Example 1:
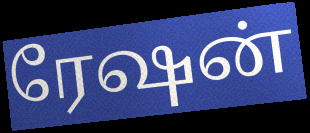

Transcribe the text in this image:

ரேஷன்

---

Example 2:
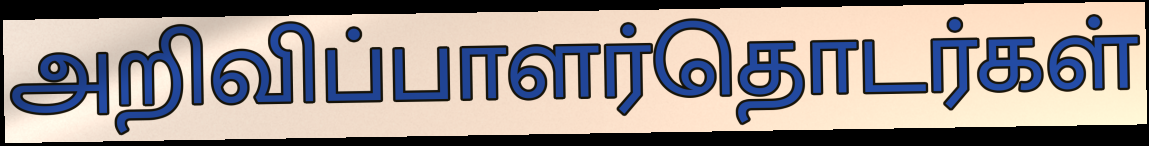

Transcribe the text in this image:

அறிவிப்பாளர்தொடர்கள்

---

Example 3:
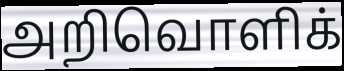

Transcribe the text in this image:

அறிவொளிக்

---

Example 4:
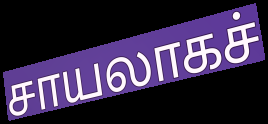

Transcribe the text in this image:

சாயலாகச்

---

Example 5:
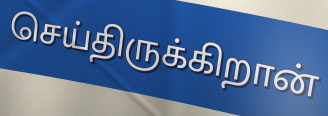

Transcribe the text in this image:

செய்திருக்கிறான்